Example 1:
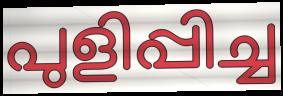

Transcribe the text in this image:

പുളിപ്പിച്ച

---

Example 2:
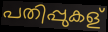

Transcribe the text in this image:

പതിപ്പുകള്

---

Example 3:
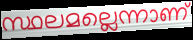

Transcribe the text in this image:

സ്ഥലമല്ലെന്നാണ്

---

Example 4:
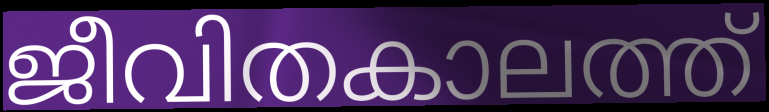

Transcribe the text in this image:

ജീവിതകാലത്ത്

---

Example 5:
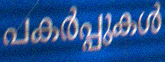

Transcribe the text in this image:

പകർപ്പുകൾ